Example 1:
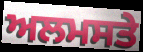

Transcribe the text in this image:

ਅਲਮਸਤੇ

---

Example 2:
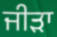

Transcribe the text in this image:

ਜੀੜਾ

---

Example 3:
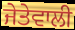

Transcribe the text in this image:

ਜੇਤੇਵਾਲੀ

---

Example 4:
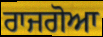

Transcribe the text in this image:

ਰਾਜਗੋਆ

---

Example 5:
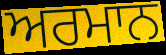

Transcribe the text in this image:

ਅਰਮਾਨ